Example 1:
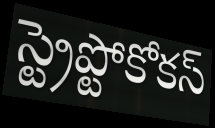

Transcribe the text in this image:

స్ట్రెప్టోకోకస్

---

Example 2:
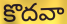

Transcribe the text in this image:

కొదవా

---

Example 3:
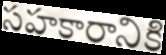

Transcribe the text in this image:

సహకారానికి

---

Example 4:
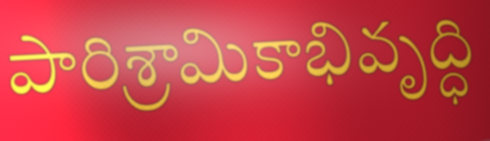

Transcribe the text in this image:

పారిశ్రామికాభివృద్ధి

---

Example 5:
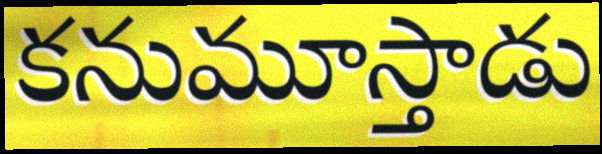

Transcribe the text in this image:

కనుమూస్తాడు